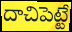
దాచిపెట్టే